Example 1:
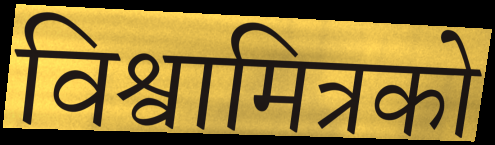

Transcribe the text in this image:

विश्वामित्रको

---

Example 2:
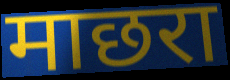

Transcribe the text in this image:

माछरा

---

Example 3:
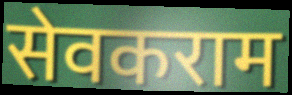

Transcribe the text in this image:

सेवकराम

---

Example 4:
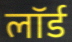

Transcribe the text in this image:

लॉर्ड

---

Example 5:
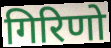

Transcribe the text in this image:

गिरिणो